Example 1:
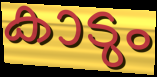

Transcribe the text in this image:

കാടും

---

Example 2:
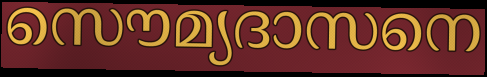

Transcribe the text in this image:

സൌമ്യദാസനെ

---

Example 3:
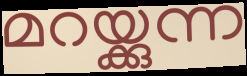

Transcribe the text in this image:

മറയ്ക്കുന്ന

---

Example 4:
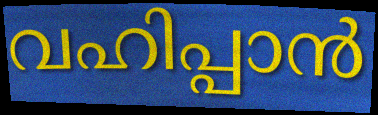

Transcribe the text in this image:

വഹിപ്പാൻ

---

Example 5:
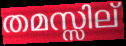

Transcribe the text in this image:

തമസ്സില്